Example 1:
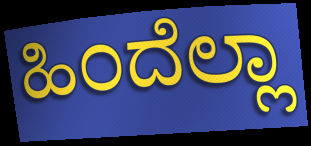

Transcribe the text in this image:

ಹಿಂದೆಲ್ಲಾ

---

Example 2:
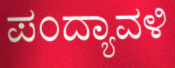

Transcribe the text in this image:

ಪಂದ್ಯಾವಳಿ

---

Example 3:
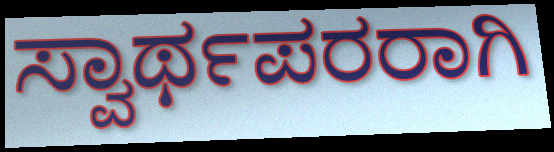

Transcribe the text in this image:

ಸ್ವಾರ್ಥಪರರಾಗಿ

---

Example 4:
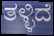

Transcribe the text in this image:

ತಳ್ಳಿದೆ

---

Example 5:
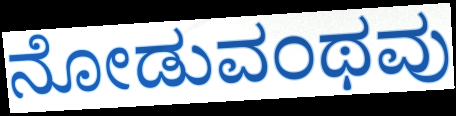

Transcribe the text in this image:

ನೋಡುವಂಥವು